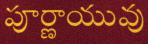
పూర్ణాయువు